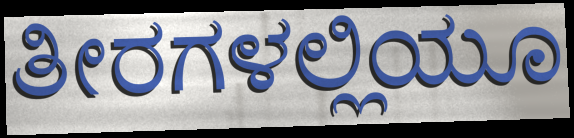
ತೀರಗಳಲ್ಲಿಯೂ